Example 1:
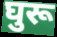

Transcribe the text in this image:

घुरू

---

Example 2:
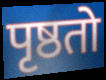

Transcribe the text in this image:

पृष्ठतो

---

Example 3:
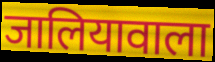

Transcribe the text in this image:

जालियावाला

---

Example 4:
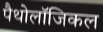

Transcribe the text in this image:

पैथोलॉजिकल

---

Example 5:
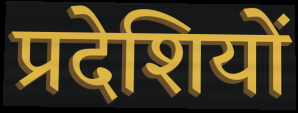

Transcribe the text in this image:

प्रदेशियों